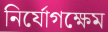
নির্যোগক্ষেম